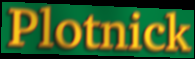
Plotnick